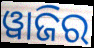
ୱାଜିର